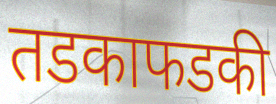
तडकाफडकी